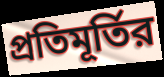
প্রতিমূর্তির